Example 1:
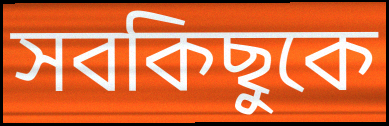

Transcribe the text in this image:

সবকিছুকে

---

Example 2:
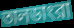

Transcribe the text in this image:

তালডাংরা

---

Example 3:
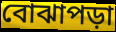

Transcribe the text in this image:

বোঝাপড়া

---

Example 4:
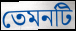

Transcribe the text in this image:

তেমনটি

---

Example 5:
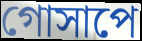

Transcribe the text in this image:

গোসাপে